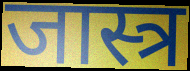
जास्त्र